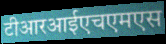
टीआरआईएचएमएस